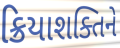
ક્રિયાશક્તિને